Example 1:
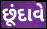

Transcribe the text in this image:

છૂંદાવે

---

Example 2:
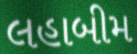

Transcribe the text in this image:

લહાબીમ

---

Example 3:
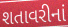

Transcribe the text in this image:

શતાવરીનાં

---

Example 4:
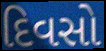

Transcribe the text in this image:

દિવસો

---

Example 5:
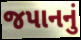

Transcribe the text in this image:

જપાનનું